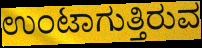
ಉಂಟಾಗುತ್ತಿರುವ